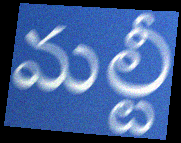
మల్టీ